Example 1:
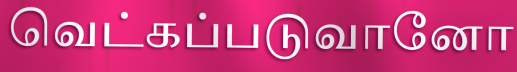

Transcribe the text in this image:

வெட்கப்படுவானோ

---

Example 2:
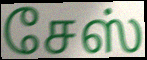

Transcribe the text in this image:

சேஸ்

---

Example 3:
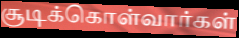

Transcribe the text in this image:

சூடிக்கொள்வார்கள்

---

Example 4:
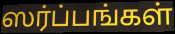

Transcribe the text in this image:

ஸர்ப்பங்கள்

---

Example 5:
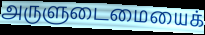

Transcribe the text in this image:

அருளுடைமையைக்